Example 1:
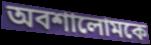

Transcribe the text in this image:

অবশালোমকে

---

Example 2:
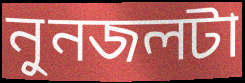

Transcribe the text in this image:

নুনজলটা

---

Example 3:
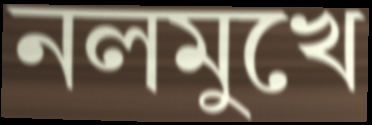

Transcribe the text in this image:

নলমুখে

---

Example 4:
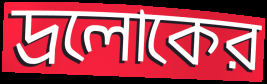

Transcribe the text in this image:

দ্রলোকের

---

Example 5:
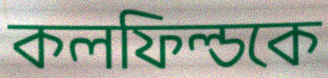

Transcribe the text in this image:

কলফিল্ডকে